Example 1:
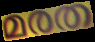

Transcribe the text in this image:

മരത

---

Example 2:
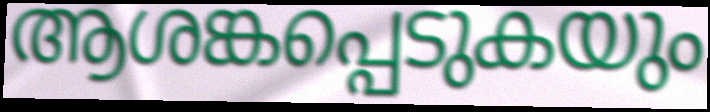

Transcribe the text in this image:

ആശങ്കപ്പെടുകയും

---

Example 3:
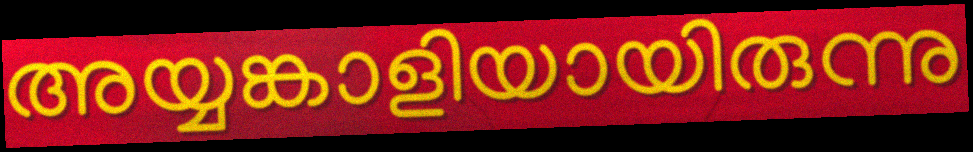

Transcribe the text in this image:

അയ്യങ്കാളിയായിരുന്നു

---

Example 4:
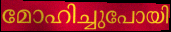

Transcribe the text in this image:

മോഹിച്ചുപോയി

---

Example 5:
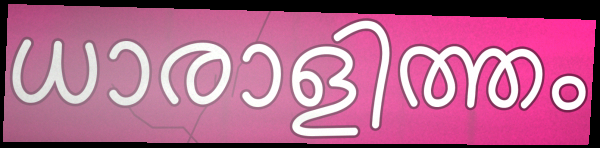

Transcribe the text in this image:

ധാരാളിത്തം